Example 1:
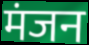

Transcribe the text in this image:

मंजन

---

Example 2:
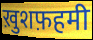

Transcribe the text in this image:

ख़ुशफ़हमी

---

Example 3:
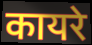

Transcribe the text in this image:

कायरे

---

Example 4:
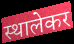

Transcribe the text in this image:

स्थालेकर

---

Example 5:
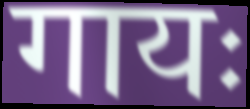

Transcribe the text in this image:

गायः